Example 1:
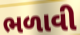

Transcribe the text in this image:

ભળાવી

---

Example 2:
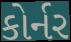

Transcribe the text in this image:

કોર્નર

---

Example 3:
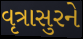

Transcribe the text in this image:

વૃત્રાસુરને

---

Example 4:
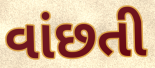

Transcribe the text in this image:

વાંછતી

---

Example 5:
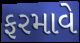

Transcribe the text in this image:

ફરમાવે